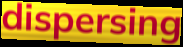
dispersing